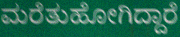
ಮರೆತುಹೋಗಿದ್ದಾರೆ